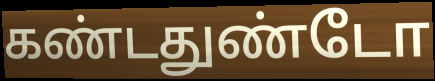
கண்டதுண்டோ